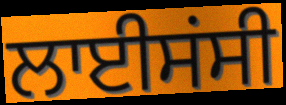
ਲਾਈਸਂਸੀ